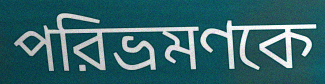
পরিভ্রমণকে